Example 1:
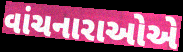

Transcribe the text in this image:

વાંચનારાઓએ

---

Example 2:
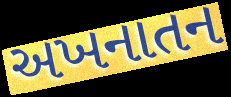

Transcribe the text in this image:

અખનાતન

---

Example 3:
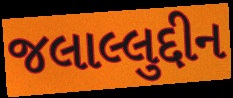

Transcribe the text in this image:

જલાલ્લુદ્દીન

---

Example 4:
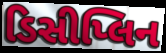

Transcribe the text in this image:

ડિસીપ્લિન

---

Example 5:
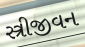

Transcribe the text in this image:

સ્ત્રીજીવન